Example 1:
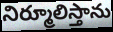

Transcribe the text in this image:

నిర్మూలిస్తాను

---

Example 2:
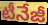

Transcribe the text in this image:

టీనేజీ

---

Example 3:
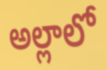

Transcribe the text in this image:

అల్లాలో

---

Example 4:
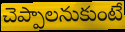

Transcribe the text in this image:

చెప్పాలనుకుంటే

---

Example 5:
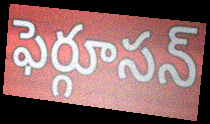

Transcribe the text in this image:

ఫెర్గూసన్